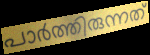
പാർത്തിരുന്നത്